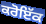
ਕਰੋਇੱਕ